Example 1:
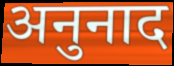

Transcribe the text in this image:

अनुनाद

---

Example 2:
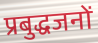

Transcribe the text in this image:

प्रबुद्धजनों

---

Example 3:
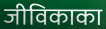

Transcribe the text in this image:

जीविकाका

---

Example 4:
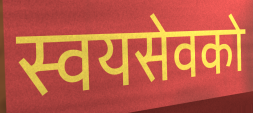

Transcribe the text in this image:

स्वयसेवको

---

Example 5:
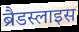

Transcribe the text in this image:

ब्रैडस्लाइस